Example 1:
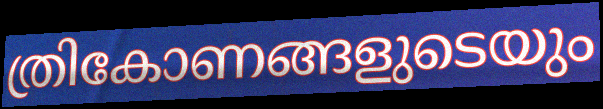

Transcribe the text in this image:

ത്രികോണങ്ങളുടെയും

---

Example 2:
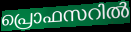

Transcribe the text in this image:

പ്രൊഫസറിൽ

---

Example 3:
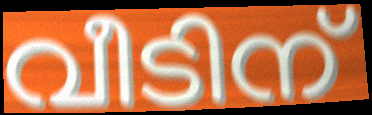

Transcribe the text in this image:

വീടിന്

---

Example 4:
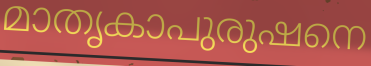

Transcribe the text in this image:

മാതൃകാപുരുഷനെ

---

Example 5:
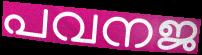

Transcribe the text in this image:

പവനജ